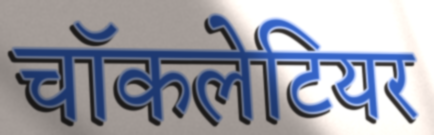
चॉकलेटियर